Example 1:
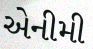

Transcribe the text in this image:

એનીમી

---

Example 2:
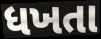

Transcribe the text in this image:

ધખતા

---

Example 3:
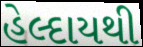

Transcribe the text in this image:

હેલ્દાયથી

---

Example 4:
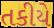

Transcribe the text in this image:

તકીયે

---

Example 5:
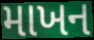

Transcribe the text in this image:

માખન